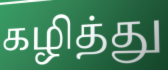
கழித்து